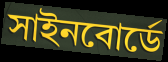
সাইনবোর্ডে